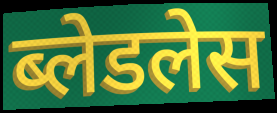
ब्लेडलेस